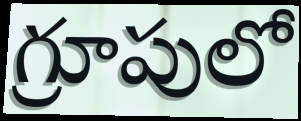
గ్రూపులో